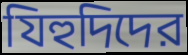
যিহুদিদের